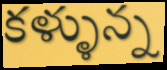
కళ్ళున్న